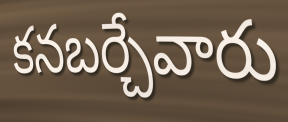
కనబర్చేవారు